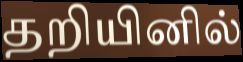
தறியினில்